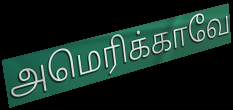
அமெரிக்காவே